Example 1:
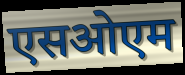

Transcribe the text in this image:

एसओएम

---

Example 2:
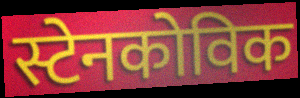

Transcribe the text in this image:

स्टेनकोविक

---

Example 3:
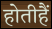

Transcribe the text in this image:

होतीहैं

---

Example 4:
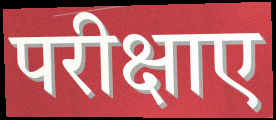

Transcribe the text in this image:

परीक्षाए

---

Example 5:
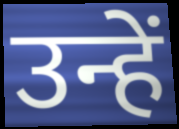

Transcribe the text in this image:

उन्हें